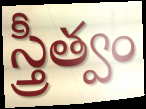
స్త్రీత్వం